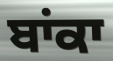
ਬਾਂਕਾ